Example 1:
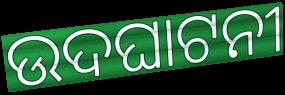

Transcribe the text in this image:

ଉଦଘାଟନୀ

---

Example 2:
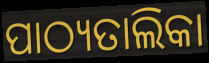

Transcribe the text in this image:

ପାଠ୍ୟତାଲିକା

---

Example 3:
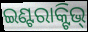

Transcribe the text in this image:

ଇଣ୍ଟରାକ୍ଟିଭ୍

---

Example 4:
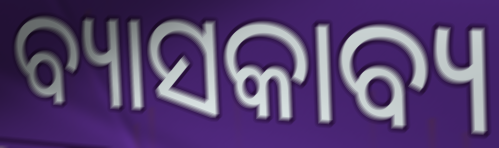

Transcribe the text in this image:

ବ୍ୟାସକାବ୍ୟ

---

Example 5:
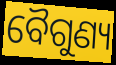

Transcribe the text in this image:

ବୈଗୁଣ୍ୟ